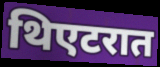
थिएटरात